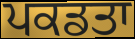
ਪਕਡਤਾ